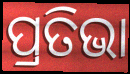
ପ୍ରତିଭା